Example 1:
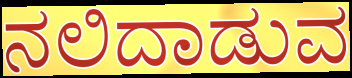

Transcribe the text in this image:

ನಲಿದಾಡುವ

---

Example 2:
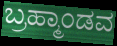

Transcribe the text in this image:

ಬ್ರಹ್ಮಾಂಡವ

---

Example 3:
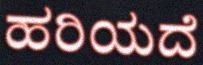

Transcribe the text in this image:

ಹರಿಯದೆ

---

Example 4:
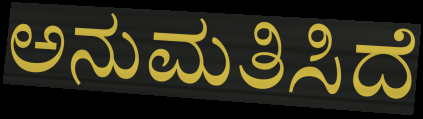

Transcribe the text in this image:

ಅನುಮತಿಸಿದೆ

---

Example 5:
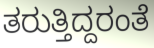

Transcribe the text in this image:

ತರುತ್ತಿದ್ದರಂತೆ